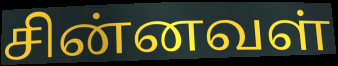
சின்னவள்